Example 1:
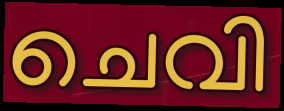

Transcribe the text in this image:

ചെവി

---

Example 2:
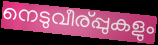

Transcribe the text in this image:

നെടുവീര്പ്പുകളും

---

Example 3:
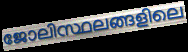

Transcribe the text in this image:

ജോലിസ്ഥലങ്ങളിലെ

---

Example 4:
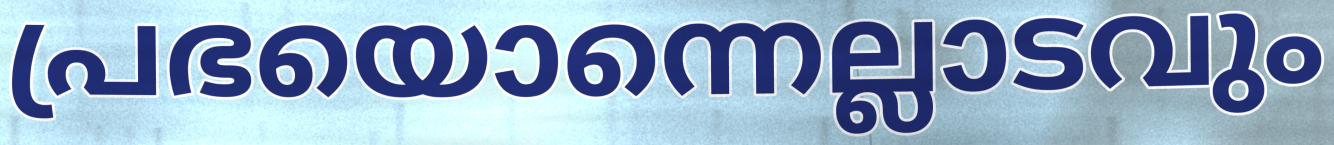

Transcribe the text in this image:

പ്രഭയൊന്നെല്ലാടവും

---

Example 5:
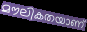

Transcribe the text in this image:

മൗലികതയാണ്